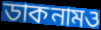
ডাকনামও